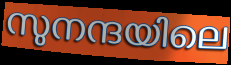
സുനന്ദയിലെ